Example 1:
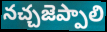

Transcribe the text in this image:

నచ్చజెప్పాలి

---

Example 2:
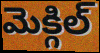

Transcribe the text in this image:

మెక్గిల్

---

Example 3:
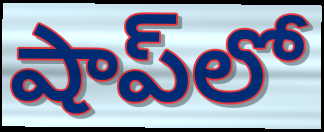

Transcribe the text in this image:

షాప్‌లో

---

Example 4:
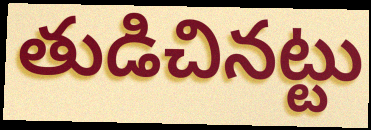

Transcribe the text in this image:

తుడిచినట్టు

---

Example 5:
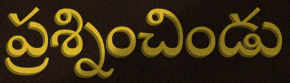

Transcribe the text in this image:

ప్రశ్నించిండు